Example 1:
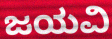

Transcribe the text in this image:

ಜಯವಿ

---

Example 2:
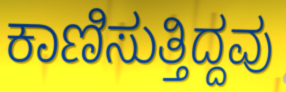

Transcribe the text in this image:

ಕಾಣಿಸುತ್ತಿದ್ದವು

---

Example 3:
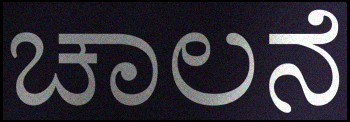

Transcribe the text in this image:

ಚಾಲನೆ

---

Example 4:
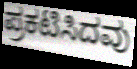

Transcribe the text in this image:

ಪ್ರಕಟಿಸಿದವು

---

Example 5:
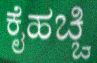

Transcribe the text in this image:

ಕೈಹಚ್ಚಿ